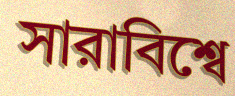
সারাবিশ্বে